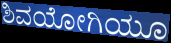
ಶಿವಯೋಗಿಯೂ